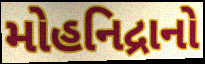
મોહનિદ્રાનો